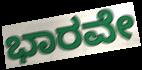
ಭಾರವೇ